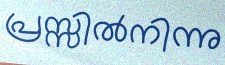
പ്രസ്സിൽനിന്നു